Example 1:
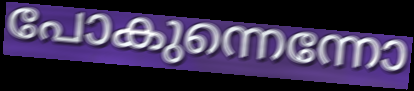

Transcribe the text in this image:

പോകുന്നെന്നോ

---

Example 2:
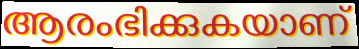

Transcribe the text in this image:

ആരംഭിക്കുകയാണ്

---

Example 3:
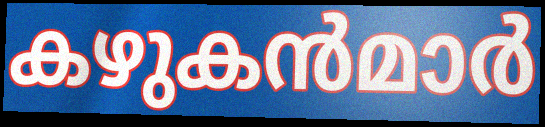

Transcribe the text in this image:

കഴുകൻമാർ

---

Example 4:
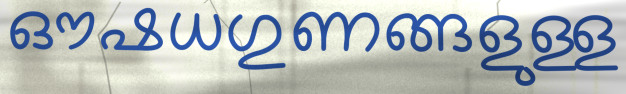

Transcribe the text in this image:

ഔഷധഗുണങ്ങളുള്ള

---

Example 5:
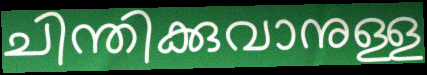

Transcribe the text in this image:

ചിന്തിക്കുവാനുള്ള